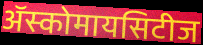
ॲस्कोमायसिटीज